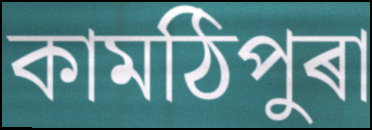
কামঠিপুৰা